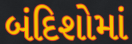
બંદિશોમાં